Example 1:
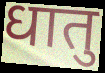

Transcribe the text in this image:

धातु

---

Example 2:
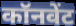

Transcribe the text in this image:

कॉनवेंट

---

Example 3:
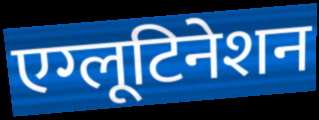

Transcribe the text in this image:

एग्लूटिनेशन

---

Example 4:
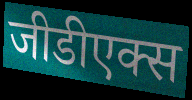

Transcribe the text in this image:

जीडीएक्स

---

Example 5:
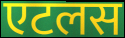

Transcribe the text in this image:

एटलस